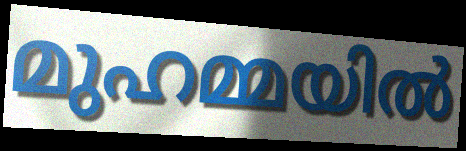
മുഹമ്മയിൽ